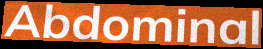
Abdominal